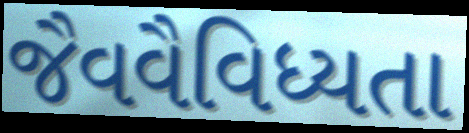
જૈવવૈવિધ્યતા